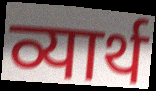
व्यार्थ